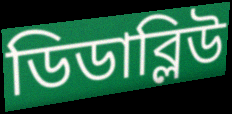
ডিডাব্লিউ